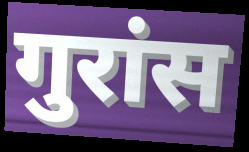
गुरांस